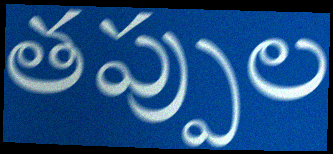
తప్పుల